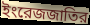
ইংরেজজাতির